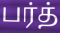
பர்த்